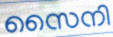
സൈനി